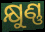
କ୍ଷୁଣ୍ଣ